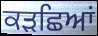
ਕੜਛਿਆਂ